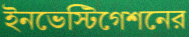
ইনভেস্টিগেশনের